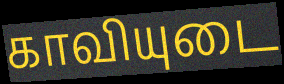
காவியுடை